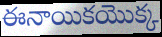
ఈనాయికయొక్క